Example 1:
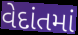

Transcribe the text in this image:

વેદાંતમાં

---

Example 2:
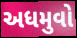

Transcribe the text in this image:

અધમુવો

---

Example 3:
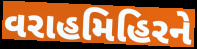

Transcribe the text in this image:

વરાહમિહિરને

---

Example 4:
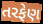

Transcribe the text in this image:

તરફેણ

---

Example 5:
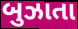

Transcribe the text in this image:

બુઝાતા